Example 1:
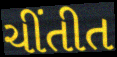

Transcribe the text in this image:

ચીંતીત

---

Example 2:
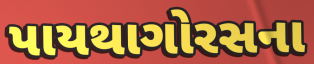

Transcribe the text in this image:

પાયથાગોરસના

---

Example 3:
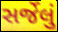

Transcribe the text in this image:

સર્જેલું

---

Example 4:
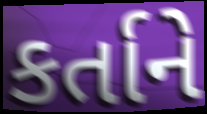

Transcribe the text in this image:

કર્તાને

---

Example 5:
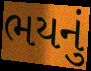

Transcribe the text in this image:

ભયનું